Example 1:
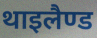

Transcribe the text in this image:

थाइलैण्ड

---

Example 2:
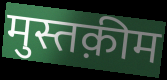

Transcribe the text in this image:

मुस्तक़ीम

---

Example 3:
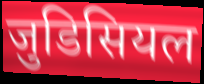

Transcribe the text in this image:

जुडिसियल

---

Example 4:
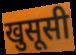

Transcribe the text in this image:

खुसूसी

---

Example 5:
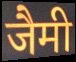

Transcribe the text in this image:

जैमी